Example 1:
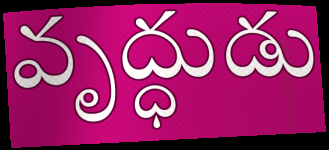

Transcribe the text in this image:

వృద్ధుడు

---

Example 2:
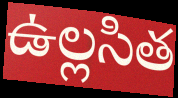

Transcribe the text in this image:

ఉల్లసిత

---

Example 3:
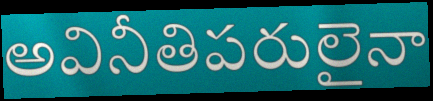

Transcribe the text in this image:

అవినీతిపరులైనా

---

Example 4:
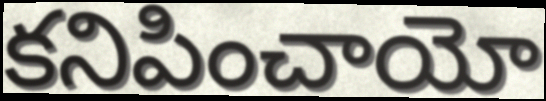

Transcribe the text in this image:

కనిపించాయో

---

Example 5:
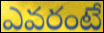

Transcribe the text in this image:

ఎవరంటే